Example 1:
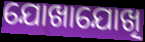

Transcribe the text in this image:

ଯୋଖାଯୋଖି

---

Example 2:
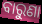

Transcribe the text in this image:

ବାରୁଣା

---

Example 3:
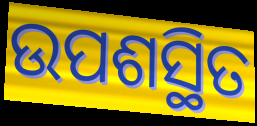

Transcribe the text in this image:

ଉପଶସ୍ଥିତ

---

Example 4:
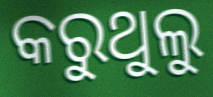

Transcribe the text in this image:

କରୁଥୁଲୁ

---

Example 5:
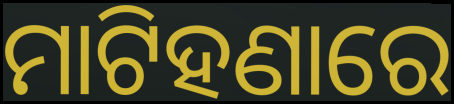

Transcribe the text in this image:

ମାଟିହଣାରେ